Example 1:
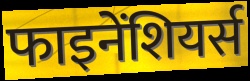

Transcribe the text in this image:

फाइनेंशियर्स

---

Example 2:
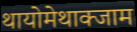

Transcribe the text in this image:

थायोमेथाक्जाम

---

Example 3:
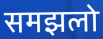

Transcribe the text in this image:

समझलो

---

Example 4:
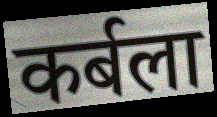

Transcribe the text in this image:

कर्बला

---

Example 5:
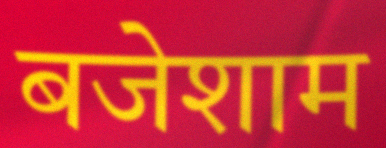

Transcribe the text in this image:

बजेशाम